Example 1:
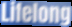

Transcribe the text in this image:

Lifelong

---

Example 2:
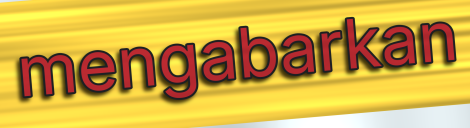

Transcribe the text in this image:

mengabarkan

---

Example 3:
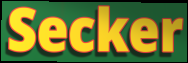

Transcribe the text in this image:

Secker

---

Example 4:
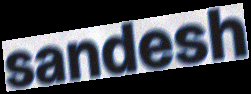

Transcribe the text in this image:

sandesh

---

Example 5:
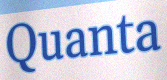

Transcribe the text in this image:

Quanta